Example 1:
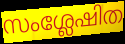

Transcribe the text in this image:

സംശ്ലേഷിത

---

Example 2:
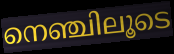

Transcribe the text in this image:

നെഞ്ചിലൂടെ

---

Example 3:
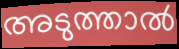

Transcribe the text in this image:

അടുത്താൽ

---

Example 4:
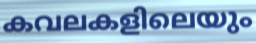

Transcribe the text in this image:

കവലകളിലെയും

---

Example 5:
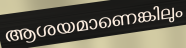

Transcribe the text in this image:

ആശയമാണെങ്കിലും